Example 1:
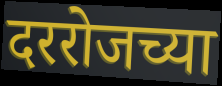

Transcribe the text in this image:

दररोजच्या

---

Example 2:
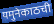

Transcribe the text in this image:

यमुनेकाठची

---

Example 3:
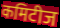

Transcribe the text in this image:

कमिटीज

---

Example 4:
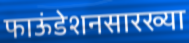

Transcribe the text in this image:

फाऊंडेशनसारख्या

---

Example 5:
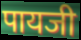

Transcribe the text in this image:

पायजी